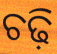
ଚଢ଼ି